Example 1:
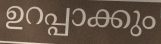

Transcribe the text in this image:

ഉറപ്പാക്കും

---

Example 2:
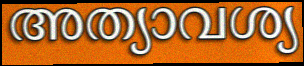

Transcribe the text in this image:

അത്യാവശ്യ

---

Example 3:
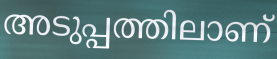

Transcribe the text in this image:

അടുപ്പത്തിലാണ്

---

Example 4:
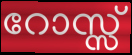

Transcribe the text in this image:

റോസ്സ്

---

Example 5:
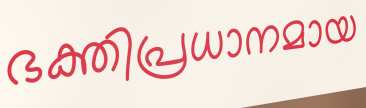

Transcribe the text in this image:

ഭക്തിപ്രധാനമായ